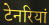
टेनरियां